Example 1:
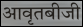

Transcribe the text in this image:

आवृतबीजी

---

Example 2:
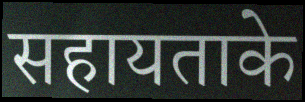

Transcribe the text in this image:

सहायताके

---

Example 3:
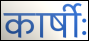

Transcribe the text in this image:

कार्षीः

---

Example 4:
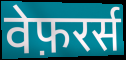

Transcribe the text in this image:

वेफ़रर्स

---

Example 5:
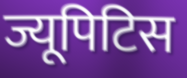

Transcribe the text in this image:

ज्यूपिटिस